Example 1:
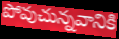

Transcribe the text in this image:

పోవుచున్నవానికి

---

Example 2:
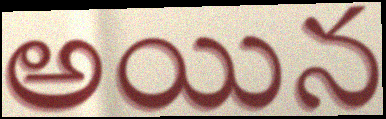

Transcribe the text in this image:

అయిన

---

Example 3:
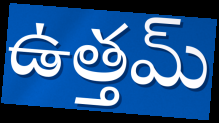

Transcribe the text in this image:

ఉత్తమ్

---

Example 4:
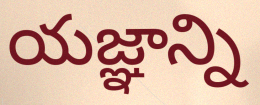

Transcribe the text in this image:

యజ్ఞాన్ని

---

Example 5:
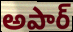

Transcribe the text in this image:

అపార్